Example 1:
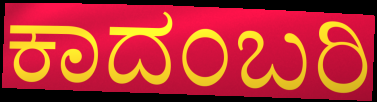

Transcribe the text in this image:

ಕಾದಂಬರಿ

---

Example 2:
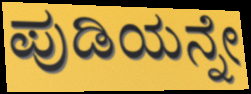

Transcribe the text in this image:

ಪುಡಿಯನ್ನೇ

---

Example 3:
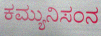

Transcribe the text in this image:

ಕಮ್ಯುನಿಸಂನ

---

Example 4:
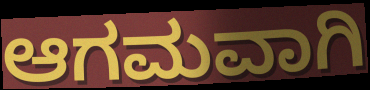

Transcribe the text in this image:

ಆಗಮವಾಗಿ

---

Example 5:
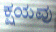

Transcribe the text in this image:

ಕ್ಷಯವು